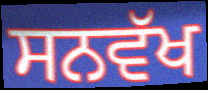
ਸਨਵੱਖ